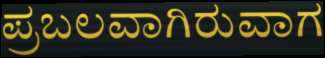
ಪ್ರಬಲವಾಗಿರುವಾಗ